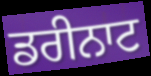
ਡਰੀਨਾਟ